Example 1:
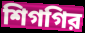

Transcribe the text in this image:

শিগগির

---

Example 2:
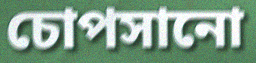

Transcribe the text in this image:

চোপসানো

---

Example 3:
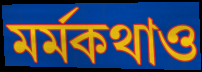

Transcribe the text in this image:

মর্মকথাও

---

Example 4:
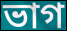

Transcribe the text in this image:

ভাগ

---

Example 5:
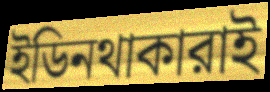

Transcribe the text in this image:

ইডিনথাকারাই